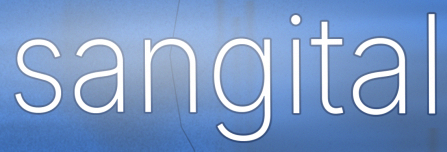
sangital